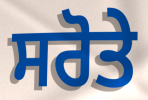
ਸਰੋਤੇ